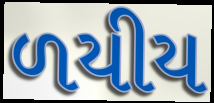
ળયીય